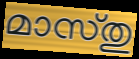
മാസ്തു